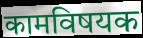
कामविषयक